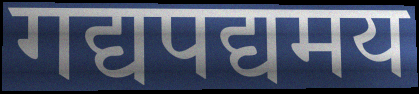
गद्यपद्यमय